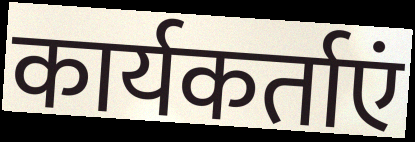
कार्यकर्ताएं